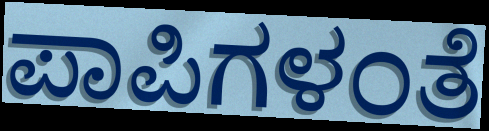
ಪಾಪಿಗಳಂತೆ